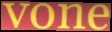
vone